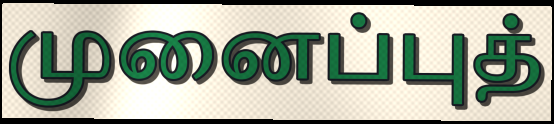
முனைப்புத்